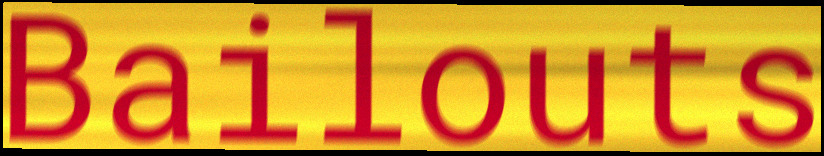
Bailouts